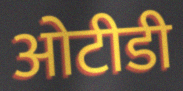
ओटीडी